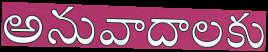
అనువాదాలకు